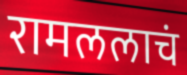
रामललाचं